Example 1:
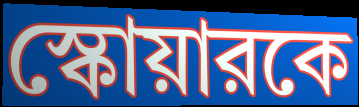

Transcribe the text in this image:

স্কোয়ারকে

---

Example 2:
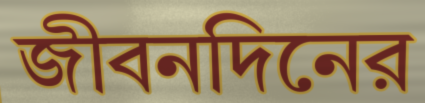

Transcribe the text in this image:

জীবনদিনের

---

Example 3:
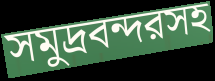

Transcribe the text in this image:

সমুদ্রবন্দরসহ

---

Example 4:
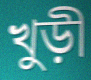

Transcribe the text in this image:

খুড়ী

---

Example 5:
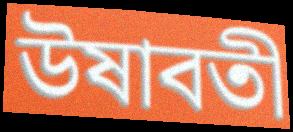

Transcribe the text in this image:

উষাবতী